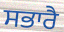
ਸਭਾਰੈ